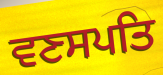
ਵਣਸਪਤਿ